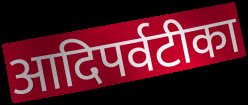
आदिपर्वटीका